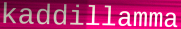
kaddillamma